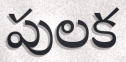
పులక